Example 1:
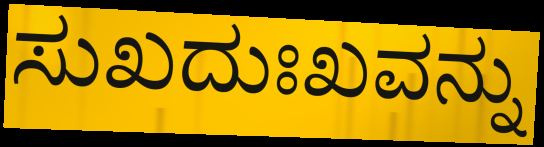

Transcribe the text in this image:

ಸುಖದುಃಖವನ್ನು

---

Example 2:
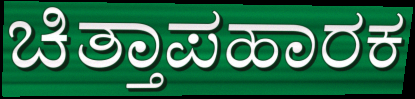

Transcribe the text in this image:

ಚಿತ್ತಾಪಹಾರಕ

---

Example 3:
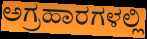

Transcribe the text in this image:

ಅಗ್ರಹಾರಗಳಲ್ಲಿ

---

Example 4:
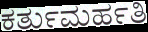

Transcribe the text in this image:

ಕರ್ತುಮರ್ಹತಿ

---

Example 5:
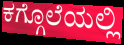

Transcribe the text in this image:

ಕಗ್ಗೊಲೆಯಲ್ಲಿ